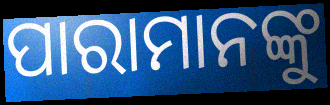
ପାରାମାନଙ୍କୁ